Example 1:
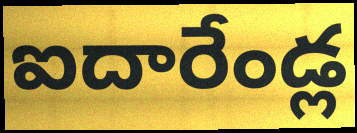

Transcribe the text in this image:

ఐదారేండ్ల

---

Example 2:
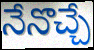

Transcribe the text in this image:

నేనొచ్చే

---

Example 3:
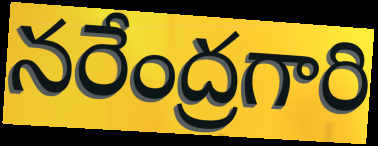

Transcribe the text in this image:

నరేంద్రగారి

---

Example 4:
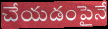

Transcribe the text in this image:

చేయడంపైనే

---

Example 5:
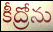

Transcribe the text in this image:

కీద్రోను